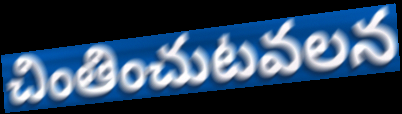
చింతించుటవలన